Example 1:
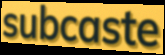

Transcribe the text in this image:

subcaste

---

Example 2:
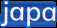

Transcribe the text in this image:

japa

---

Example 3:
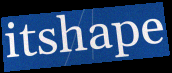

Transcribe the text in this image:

itshape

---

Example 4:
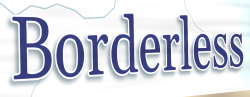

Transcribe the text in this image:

Borderless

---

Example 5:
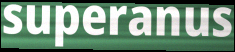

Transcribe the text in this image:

superanus